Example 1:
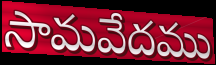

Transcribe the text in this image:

సామవేదము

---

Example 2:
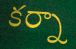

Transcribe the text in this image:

కర్నా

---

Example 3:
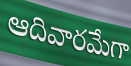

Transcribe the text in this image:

ఆదివారమేగా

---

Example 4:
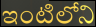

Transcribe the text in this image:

ఇంటిలోని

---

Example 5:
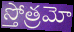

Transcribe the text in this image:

స్తోత్రమో